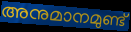
അനുമാനമുണ്ട്